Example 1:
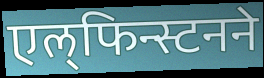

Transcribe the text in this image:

एल्फिन्स्टनने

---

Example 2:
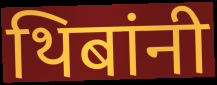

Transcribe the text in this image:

थिबांनी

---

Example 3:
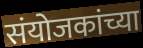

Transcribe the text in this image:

संयोजकांच्या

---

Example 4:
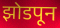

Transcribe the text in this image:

झोडपून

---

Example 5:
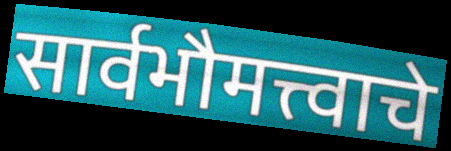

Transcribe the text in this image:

सार्वभौमत्त्वाचे